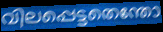
വിലപ്പെട്ടതെന്തോ